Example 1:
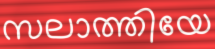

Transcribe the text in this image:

സലാത്തിയേ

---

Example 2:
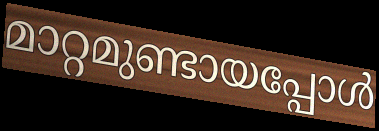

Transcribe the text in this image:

മാറ്റമുണ്ടായപ്പോൾ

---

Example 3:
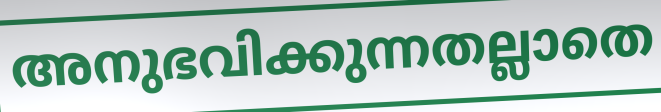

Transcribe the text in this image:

അനുഭവിക്കുന്നതല്ലാതെ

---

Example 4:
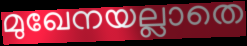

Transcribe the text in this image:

മുഖേനയല്ലാതെ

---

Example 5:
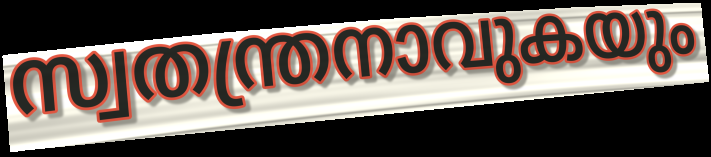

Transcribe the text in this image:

സ്വതന്ത്രനാവുകയും